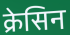
क्रेसिन